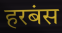
हरबंस